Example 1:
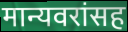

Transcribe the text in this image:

मान्यवरांसह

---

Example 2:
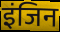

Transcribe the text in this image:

इंजिन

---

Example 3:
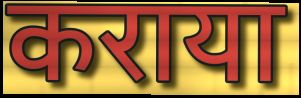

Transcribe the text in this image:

कराया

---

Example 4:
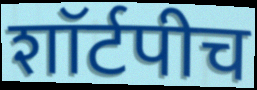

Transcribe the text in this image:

शॉर्टपीच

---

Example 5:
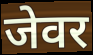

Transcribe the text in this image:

जेवर